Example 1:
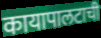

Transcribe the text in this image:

कायापालटाची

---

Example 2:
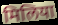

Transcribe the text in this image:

मिलिया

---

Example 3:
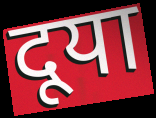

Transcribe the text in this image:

दूया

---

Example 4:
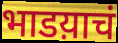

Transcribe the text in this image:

भाडय़ाचं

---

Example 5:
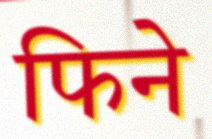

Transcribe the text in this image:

फिने